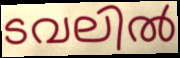
ടവലിൽ